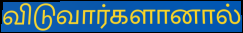
விடுவார்களானால்